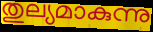
തുല്യമാകുന്നു